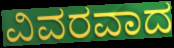
ವಿವರವಾದ